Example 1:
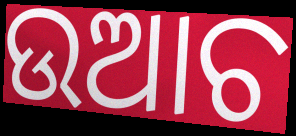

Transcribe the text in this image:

ଉଆଚ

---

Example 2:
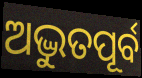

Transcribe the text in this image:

ଅଦ୍ଭୁତପୂର୍ବ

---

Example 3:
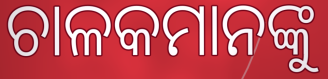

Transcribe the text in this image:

ଚାଳକମାନଙ୍କୁ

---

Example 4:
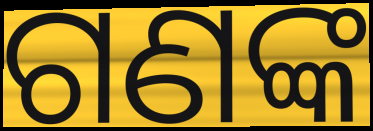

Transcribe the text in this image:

ଗଣଙ୍କ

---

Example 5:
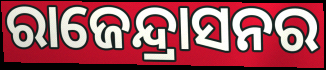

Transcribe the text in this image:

ରାଜେନ୍ଦ୍ରାସନର